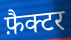
फ़ैक्टर